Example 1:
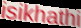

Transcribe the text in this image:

isikhathi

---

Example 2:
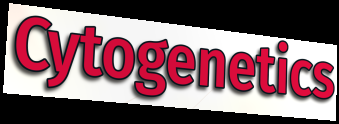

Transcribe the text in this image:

Cytogenetics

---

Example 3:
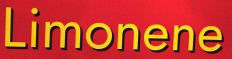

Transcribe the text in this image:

Limonene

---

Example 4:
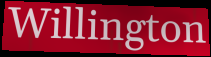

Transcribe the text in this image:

Willington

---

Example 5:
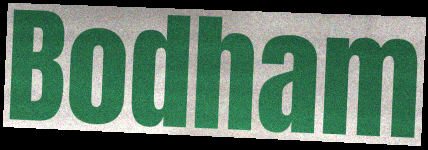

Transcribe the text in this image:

Bodham